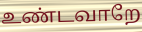
உண்டவாறே